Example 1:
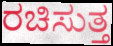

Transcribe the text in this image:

ರಚಿಸುತ್ತ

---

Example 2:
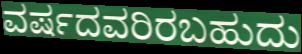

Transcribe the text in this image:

ವರ್ಷದವರಿರಬಹುದು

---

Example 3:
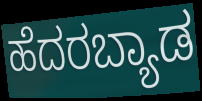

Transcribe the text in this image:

ಹೆದರಬ್ಯಾಡ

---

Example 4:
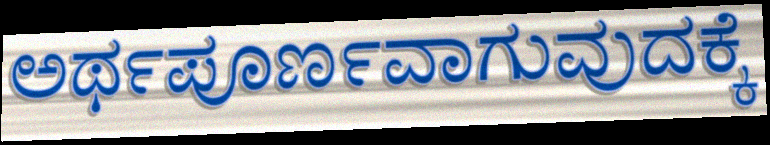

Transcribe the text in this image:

ಅರ್ಥಪೂರ್ಣವಾಗುವುದಕ್ಕೆ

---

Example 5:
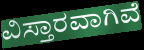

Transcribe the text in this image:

ವಿಸ್ತಾರವಾಗಿವೆ